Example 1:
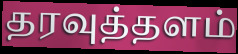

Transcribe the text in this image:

தரவுத்தளம்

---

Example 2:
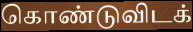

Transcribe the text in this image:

கொண்டுவிடக்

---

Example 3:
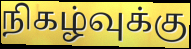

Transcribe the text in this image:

நிகழ்வுக்கு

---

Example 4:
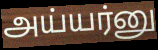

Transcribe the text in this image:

அய்யர்னு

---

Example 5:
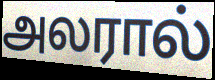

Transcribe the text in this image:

அலரால்